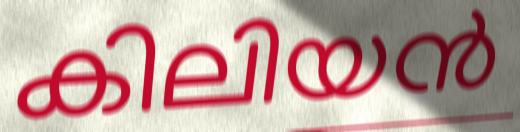
കിലിയൻ